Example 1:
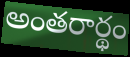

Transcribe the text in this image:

అంతరార్థం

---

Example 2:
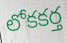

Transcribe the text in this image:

లోకకర్త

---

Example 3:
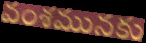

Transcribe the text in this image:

వంశమునకు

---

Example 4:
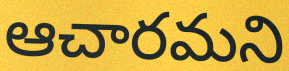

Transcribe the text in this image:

ఆచారమని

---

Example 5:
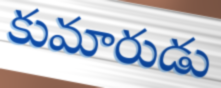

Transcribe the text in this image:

కుమారుడు